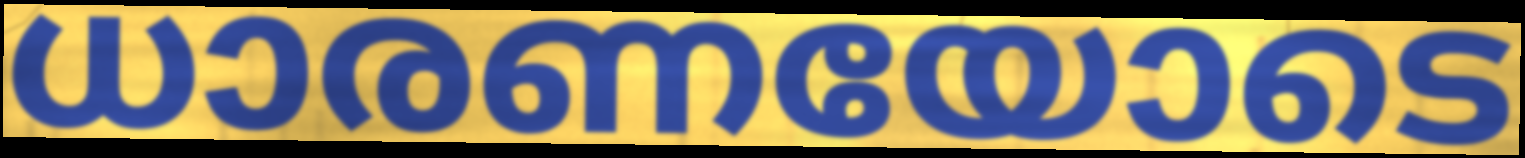
ധാരണയോടെ